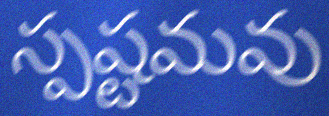
స్పష్టమవు